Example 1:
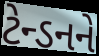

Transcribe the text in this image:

ટેન્ડનને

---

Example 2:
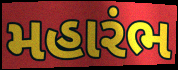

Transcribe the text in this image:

મહારંભ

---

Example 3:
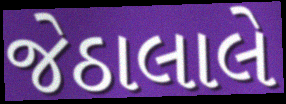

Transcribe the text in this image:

જેઠાલાલે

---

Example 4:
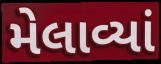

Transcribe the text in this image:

મેલાવ્યાં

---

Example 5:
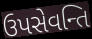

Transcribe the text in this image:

ઉપસેવન્તિ